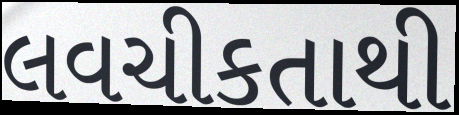
લવચીકતાથી